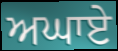
ਅਘਾਏ